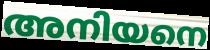
അനിയനെ